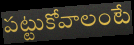
పట్టుకోవాలంటే